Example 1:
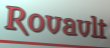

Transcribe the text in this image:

Rouault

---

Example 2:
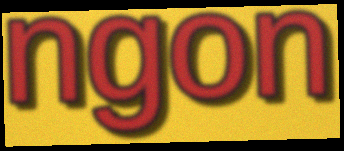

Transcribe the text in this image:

ngon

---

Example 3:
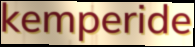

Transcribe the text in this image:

kemperide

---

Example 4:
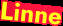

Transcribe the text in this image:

Linne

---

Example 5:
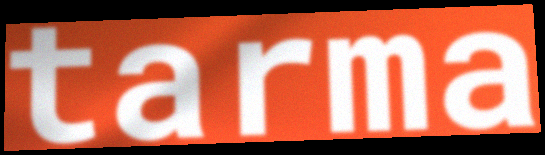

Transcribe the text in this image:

tarma